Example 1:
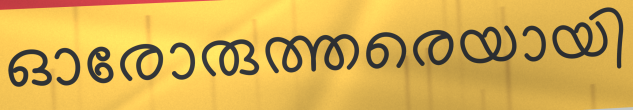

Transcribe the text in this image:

ഓരോരുത്തരെയായി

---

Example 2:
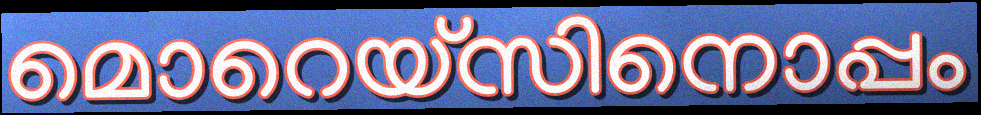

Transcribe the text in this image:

മൊറെയ്സിനൊപ്പം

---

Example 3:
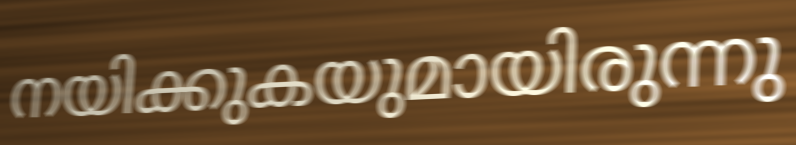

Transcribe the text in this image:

നയിക്കുകയുമായിരുന്നു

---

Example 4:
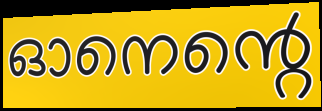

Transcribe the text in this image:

ഓനെന്റെ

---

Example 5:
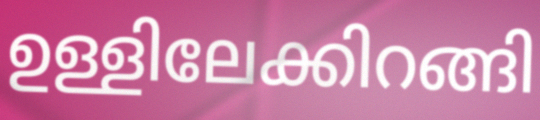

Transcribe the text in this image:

ഉള്ളിലേക്കിറങ്ങി